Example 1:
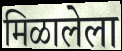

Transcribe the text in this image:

मिळालेला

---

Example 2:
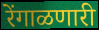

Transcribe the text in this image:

रेंगाळणारी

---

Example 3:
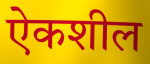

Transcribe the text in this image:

ऐकशील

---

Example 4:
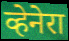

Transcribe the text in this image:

व्हेनेरा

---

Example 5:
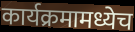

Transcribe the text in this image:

कार्यक्रमामध्येच